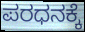
ಪರಧನಕ್ಕೆ